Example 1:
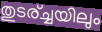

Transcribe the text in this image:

തുടര്ച്ചയിലും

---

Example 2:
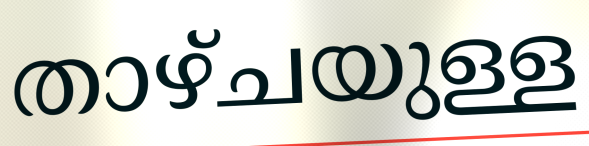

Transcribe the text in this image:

താഴ്ചയുള്ള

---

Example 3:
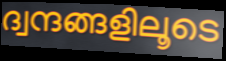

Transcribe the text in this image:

ദ്വന്ദങ്ങളിലൂടെ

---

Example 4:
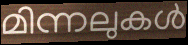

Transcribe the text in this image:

മിന്നലുകൾ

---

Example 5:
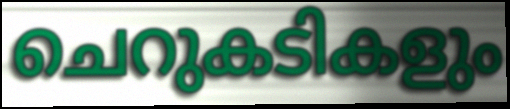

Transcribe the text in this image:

ചെറുകടികളും